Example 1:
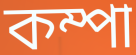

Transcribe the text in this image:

কম্পা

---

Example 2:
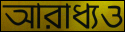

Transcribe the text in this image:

আরাধ্যও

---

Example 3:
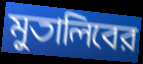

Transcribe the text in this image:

মুতালিবের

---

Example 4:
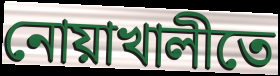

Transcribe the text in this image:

নোয়াখালীতে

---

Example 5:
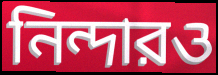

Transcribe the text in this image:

নিন্দারও